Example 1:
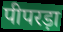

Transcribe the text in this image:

पीपरड़ा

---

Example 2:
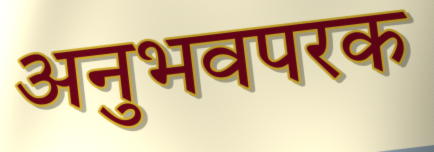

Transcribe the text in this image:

अनुभवपरक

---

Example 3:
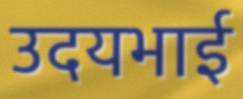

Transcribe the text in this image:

उदयभाई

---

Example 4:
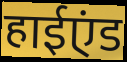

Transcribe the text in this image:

हाईएंड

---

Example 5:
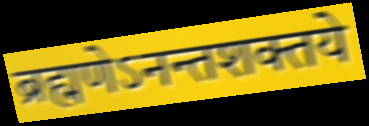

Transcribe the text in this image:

ब्रह्मणेऽनन्तशक्तये